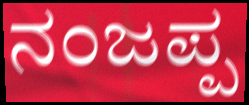
ನಂಜಪ್ಪ